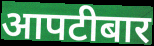
आपटीबार